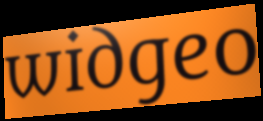
widgeo